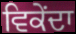
ਵਿਕੇਂਦਾ